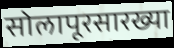
सोलापूरसारख्या